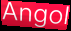
Angol